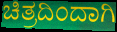
ಚಿತ್ರದಿಂದಾಗಿ